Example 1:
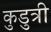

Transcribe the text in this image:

कुडुत्री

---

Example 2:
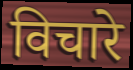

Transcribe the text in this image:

विचारे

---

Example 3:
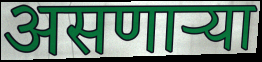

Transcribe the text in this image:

असणाऱ्या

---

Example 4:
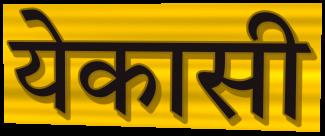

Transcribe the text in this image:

येकासी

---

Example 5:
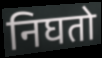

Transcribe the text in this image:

निघतो